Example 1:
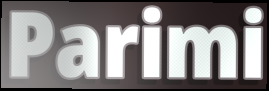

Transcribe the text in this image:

Parimi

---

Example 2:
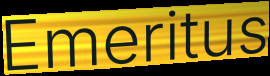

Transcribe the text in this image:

Emeritus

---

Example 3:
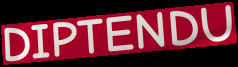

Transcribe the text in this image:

DIPTENDU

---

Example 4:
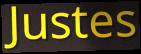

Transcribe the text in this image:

Justes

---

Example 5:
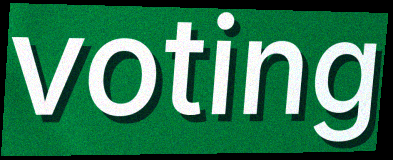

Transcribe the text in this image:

voting